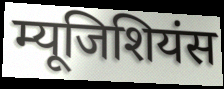
म्यूजिशियंस